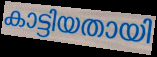
കാട്ടിയതായി